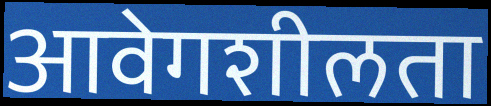
आवेगशीलता